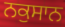
ਨਕੁਸਾਨ